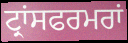
ਟ੍ਰਾਂਸਫਰਮਰਾਂ